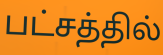
பட்சத்தில்